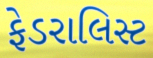
ફેડરાલિસ્ટ